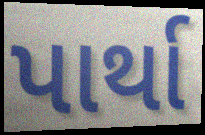
પાર્થા